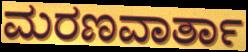
ಮರಣವಾರ್ತಾ